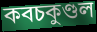
কবচকুণ্ডল